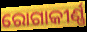
ରୋଗାକୀର୍ଣ୍ଣ